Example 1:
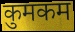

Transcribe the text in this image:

कुमकम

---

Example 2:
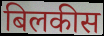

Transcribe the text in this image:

बिलकीस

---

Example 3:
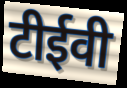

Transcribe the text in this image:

टीईवी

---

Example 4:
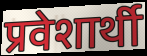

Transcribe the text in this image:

प्रवेशार्थी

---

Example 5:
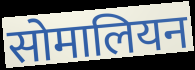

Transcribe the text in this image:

सोमालियन